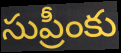
సుప్రీంకు